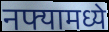
नफ्यामध्ये